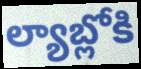
ల్యాబ్లోకి